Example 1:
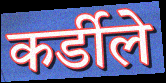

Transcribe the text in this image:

कर्डीले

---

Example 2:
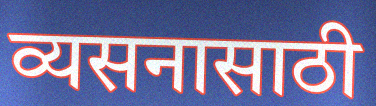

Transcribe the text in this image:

व्यसनासाठी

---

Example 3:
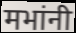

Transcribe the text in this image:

मभांनी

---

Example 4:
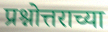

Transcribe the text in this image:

प्रश्नोत्तराच्या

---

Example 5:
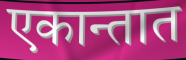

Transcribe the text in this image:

एकान्तात